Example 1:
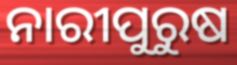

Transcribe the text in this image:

ନାରୀପୁରୁଷ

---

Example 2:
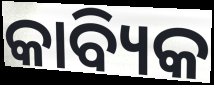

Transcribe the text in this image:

କାବ୍ୟିକ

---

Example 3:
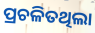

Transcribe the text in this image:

ପ୍ରଚଳିତଥିଲା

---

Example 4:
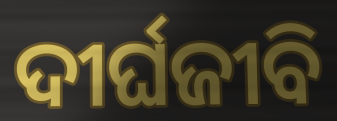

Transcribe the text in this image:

ଦୀର୍ଘଜୀବି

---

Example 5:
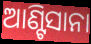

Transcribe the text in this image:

ଆଣ୍ଟିସାନା